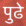
पुढे